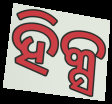
ହିକ୍ସ